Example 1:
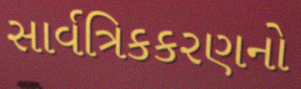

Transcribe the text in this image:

સાર્વત્રિકકરણનો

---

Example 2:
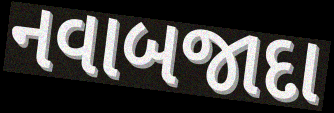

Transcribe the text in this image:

નવાબજાદા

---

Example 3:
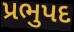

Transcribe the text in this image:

પ્રભુપદ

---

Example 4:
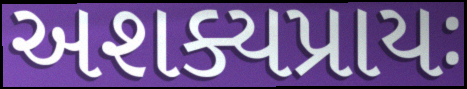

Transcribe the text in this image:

અશક્યપ્રાયઃ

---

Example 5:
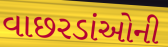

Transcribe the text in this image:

વાછરડાંઓની